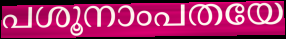
പശൂനാംപതയേ